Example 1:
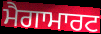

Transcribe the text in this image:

ਮੈਗਾਮਾਰਟ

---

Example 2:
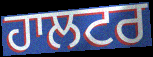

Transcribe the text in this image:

ਹਾਲਟਰ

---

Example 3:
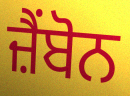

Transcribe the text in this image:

ਜ਼ੈਂਬੋਨ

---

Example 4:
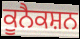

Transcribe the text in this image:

ਕੂਨੈਕਸ਼ਨ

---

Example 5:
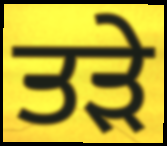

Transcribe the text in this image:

ਤੜੇ